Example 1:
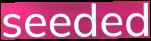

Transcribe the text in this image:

seeded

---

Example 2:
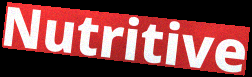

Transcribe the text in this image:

Nutritive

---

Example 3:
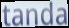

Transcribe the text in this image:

tanda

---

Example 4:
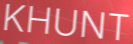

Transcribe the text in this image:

KHUNT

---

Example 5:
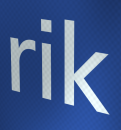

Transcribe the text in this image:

rik